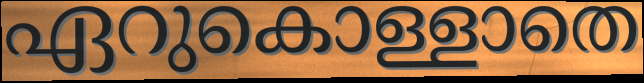
ഏറുകൊള്ളാതെ